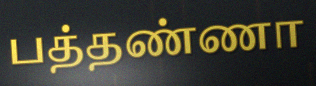
பத்தண்ணா